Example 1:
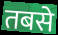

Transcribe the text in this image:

तबसे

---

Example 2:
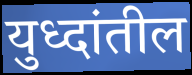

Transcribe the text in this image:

युध्दांतील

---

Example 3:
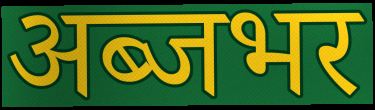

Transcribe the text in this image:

अब्जभर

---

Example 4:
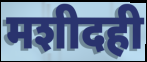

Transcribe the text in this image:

मशीदही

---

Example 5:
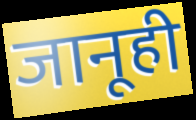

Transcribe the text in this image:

जानूही